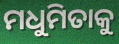
ମଧୁମିତାକୁ